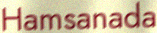
Hamsanada